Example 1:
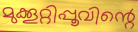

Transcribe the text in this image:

മുക്കൂറ്റിപ്പൂവിന്റെ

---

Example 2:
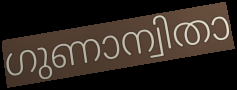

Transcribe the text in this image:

ഗുണാന്വിതാ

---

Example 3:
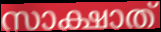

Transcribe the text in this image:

സാക്ഷാത്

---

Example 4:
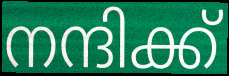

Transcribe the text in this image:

നന്ദിക്ക്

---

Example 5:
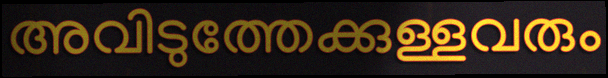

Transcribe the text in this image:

അവിടുത്തേക്കുള്ളവരും